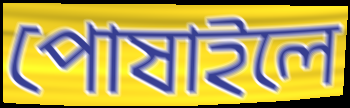
পোষাইলে